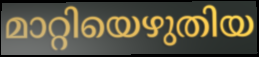
മാറ്റിയെഴുതിയ